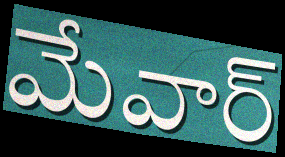
మేవార్